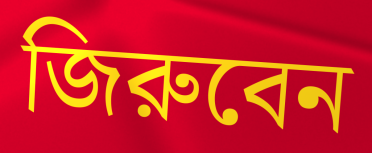
জিরুবেন